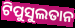
ଟିପୁସୁଲତାନ